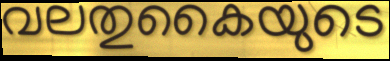
വലതുകൈയുടെ